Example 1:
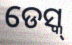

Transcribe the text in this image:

ଡେସ୍କ୍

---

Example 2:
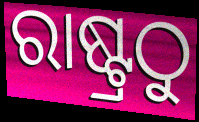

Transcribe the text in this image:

ରାଷ୍ଟ୍ରଠୁ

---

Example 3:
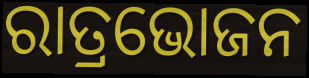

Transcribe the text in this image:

ରାତ୍ରଭୋଜନ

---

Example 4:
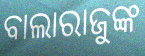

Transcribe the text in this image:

ବାଲାରାଜୁଙ୍କ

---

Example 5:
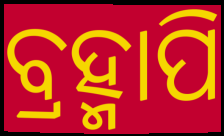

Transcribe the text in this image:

ବ୍ରହ୍ମାପି